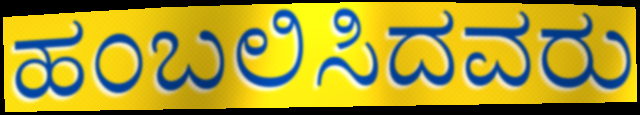
ಹಂಬಲಿಸಿದವರು